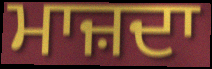
ਮਾਜ਼ਦਾ